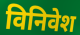
विनिवेश